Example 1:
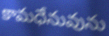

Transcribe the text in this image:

కామధేనువును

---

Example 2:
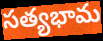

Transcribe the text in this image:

సత్యభామ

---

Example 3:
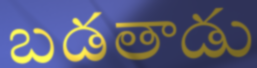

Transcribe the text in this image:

బడతాడు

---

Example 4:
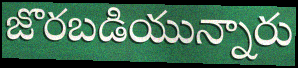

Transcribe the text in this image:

జొరబడియున్నారు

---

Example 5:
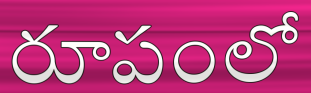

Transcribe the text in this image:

రూపంలో